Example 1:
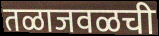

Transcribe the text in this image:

तळाजवळची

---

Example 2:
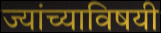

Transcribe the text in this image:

ज्यांच्याविषयी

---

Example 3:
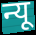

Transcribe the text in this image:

न्यू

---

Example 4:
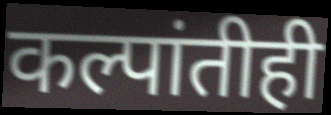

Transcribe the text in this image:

कल्पांतीही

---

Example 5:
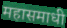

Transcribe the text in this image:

महासमाधी